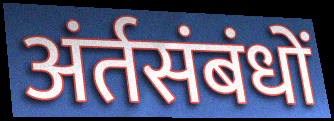
अंर्तसंबंधों